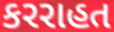
કરરાહત